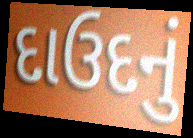
દાઉદનું